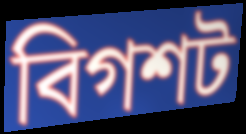
বিগশট